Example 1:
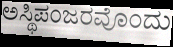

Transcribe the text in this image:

ಅಸ್ಥಿಪಂಜರವೊಂದು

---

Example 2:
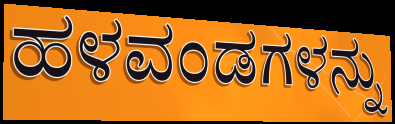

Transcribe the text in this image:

ಹಳವಂಡಗಳನ್ನು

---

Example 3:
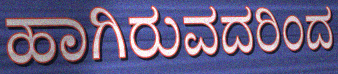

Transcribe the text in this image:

ಹಾಗಿರುವದರಿಂದ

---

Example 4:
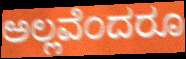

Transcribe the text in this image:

ಅಲ್ಲವೆಂದರೂ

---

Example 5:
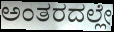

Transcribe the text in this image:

ಅಂತರದಲ್ಲೇ